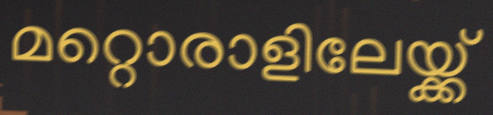
മറ്റൊരാളിലേയ്ക്ക്